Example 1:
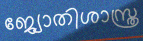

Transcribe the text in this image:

ജ്യോതിശാസ്ത്ര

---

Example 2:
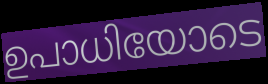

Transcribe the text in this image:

ഉപാധിയോടെ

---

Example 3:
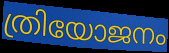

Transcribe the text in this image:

ത്രിയോജനം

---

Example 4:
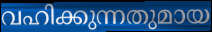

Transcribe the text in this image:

വഹിക്കുന്നതുമായ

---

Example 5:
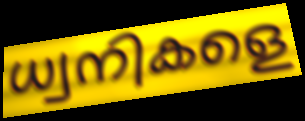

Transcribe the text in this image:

ധ്വനികളെ